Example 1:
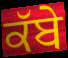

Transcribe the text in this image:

ਕੱਬੇ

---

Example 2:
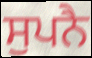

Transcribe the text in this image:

ਸੁਪਨੈ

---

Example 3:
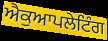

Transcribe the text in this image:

ਐਕੁਆਪਲੇਟਿੰਗ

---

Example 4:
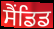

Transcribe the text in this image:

ਸੈਂਡਿਡ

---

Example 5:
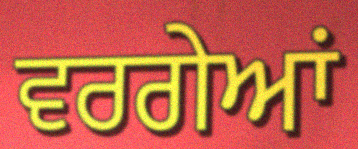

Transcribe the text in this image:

ਵਰਗੇਆਂ